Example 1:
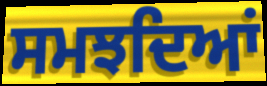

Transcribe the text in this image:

ਸਮਝਦਿਆਂ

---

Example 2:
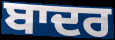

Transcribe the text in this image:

ਬਾਦਰ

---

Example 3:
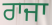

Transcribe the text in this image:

ਰਾਜਾ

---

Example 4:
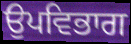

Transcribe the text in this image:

ਉਪਵਿਭਾਗ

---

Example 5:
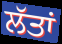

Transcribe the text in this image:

ਲੱਤਾਂ